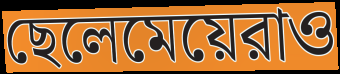
ছেলেমেয়েরাও